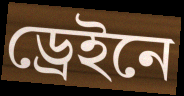
ড্রেইনে